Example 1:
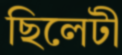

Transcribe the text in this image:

ছিলেটী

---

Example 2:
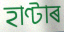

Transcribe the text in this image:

হাণ্টাৰ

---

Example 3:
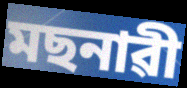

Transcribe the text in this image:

মছনাৱী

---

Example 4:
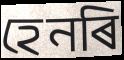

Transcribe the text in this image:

হেনৰি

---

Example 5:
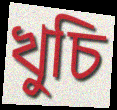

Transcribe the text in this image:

খুচি